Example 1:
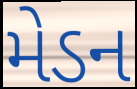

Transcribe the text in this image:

મેડન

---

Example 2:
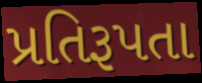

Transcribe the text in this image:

પ્રતિરૂપતા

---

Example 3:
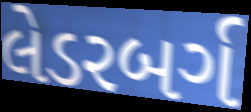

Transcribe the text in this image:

લેડરબર્ગ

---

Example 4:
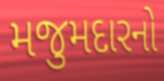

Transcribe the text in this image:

મજુમદારનો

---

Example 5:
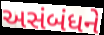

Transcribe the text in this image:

અસંબંધને